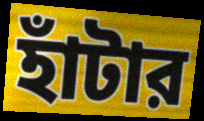
হাঁটার